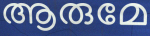
ആരുമേ